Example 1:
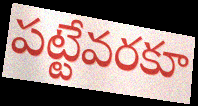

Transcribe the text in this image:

పట్టేవరకూ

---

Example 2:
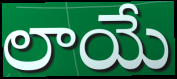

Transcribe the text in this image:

లాయే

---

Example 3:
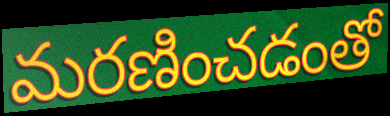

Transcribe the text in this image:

మరణించడంతో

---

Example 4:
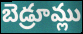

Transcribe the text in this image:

బెడ్రూమ్లు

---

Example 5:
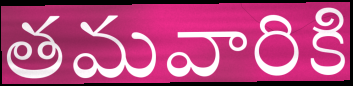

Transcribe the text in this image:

తమవారికి